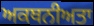
ਅਕਥਨੀਅਤਾ